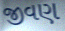
જીવણ